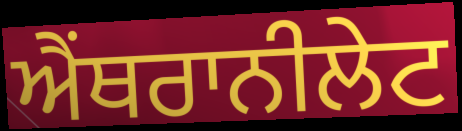
ਐਂਥਰਾਨੀਲੇਟ